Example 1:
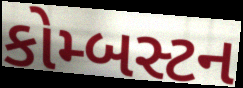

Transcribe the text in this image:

કોમ્બસ્ટન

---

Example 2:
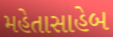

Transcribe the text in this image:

મહેતાસાહેબ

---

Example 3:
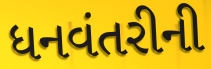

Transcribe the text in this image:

ધનવંતરીની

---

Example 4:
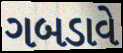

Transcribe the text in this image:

ગબડાવે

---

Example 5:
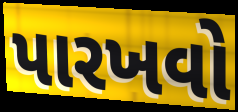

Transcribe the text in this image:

પારખવો